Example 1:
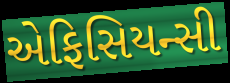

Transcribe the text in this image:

એફિસિયન્સી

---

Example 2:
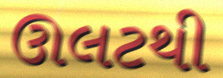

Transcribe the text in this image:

ઊલટથી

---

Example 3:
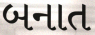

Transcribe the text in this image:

બનાત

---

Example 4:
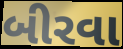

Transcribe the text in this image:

બીરવા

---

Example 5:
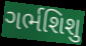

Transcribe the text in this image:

ગર્ભશિશુ